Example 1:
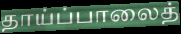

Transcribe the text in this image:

தாய்ப்பாலைத்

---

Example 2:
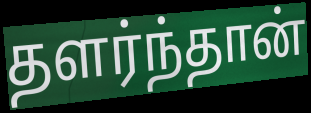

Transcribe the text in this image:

தளர்ந்தான்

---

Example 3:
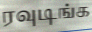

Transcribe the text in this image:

ரவுடிங்க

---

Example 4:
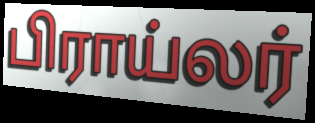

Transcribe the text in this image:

பிராய்லர்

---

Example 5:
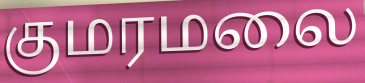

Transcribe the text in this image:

குமரமலை